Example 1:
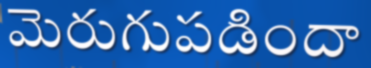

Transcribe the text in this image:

మెరుగుపడిందా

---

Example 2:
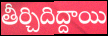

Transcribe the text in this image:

తీర్చిదిద్దాయి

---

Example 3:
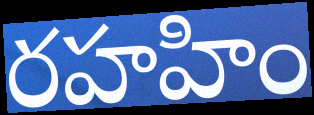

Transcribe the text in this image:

రహహిం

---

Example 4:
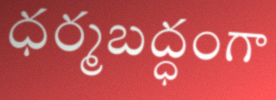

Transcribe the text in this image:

ధర్మబద్ధంగా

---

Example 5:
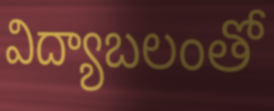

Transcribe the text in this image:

విద్యాబలంతో